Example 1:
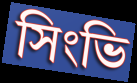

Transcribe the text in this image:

সিংভি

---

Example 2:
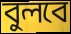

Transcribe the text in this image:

বুলবে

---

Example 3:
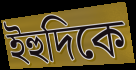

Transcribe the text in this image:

ইহুদিকে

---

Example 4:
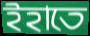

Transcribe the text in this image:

ইহাতে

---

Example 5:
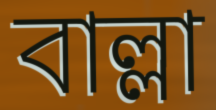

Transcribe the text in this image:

বাল্লা